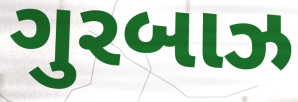
ગુરબાઝ